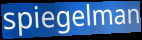
spiegelman